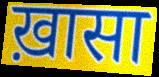
ख़ासा